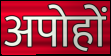
अपोहों